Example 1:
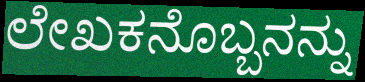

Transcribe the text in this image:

ಲೇಖಕನೊಬ್ಬನನ್ನು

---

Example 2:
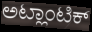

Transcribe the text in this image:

ಅಟ್ಲಾಂಟಿಕ್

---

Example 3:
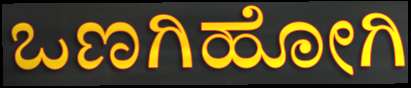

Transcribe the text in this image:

ಒಣಗಿಹೋಗಿ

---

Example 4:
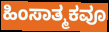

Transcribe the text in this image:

ಹಿಂಸಾತ್ಮಕವೂ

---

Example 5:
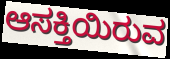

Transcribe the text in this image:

ಆಸಕ್ತಿಯಿರುವ